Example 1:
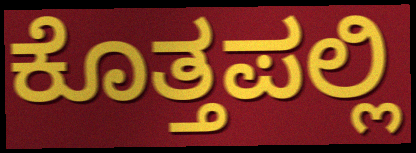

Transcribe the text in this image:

ಕೊತ್ತಪಲ್ಲಿ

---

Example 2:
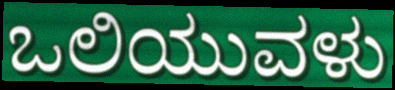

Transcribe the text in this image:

ಒಲಿಯುವಳು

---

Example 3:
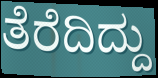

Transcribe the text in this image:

ತೆರೆದಿದ್ದು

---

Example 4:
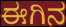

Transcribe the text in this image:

ಈಗಿನ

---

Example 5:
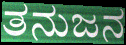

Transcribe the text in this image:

ತನುಜನ